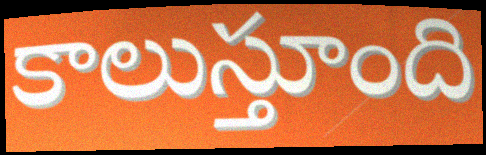
కాలుస్తూంది